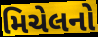
મિચેલનો